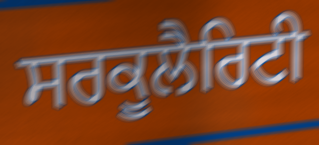
ਸਰਕੂਲੈਰਿਟੀ